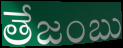
తేజంబు